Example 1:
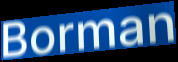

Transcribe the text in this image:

Borman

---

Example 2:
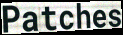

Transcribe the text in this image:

Patches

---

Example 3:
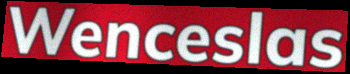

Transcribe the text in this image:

Wenceslas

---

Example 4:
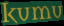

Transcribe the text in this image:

kumu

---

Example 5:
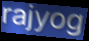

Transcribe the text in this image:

rajyog